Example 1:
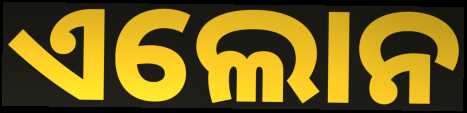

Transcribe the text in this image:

ଏଲୋନ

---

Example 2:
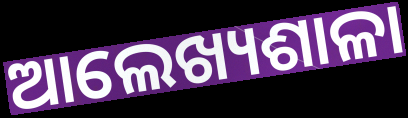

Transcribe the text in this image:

ଆଲେଖ୍ୟଶାଳା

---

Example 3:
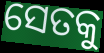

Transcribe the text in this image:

ସେତକୁ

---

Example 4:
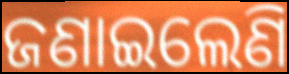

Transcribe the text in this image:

ଜଣାଇଲେଣି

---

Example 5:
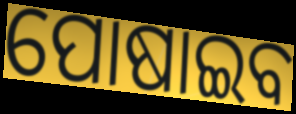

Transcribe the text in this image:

ପୋଷାଇବ